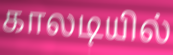
காலடியில்